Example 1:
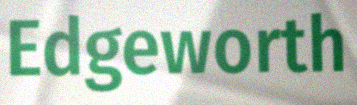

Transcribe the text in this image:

Edgeworth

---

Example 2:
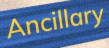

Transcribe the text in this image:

Ancillary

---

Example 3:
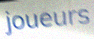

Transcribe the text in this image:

joueurs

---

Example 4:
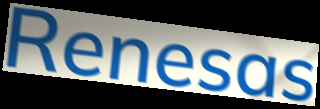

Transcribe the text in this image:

Renesas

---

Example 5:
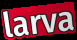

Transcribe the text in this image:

larva